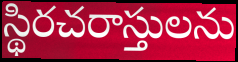
స్థిరచరాస్తులను